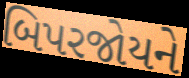
બિપરજોયને